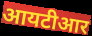
आयटीआर